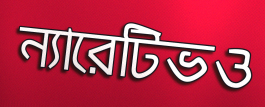
ন্যারেটিভও